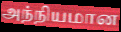
அந்நியமான